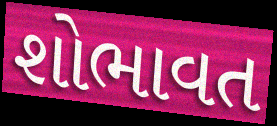
શોભાવત